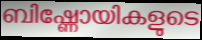
ബിഷ്ണോയികളുടെ